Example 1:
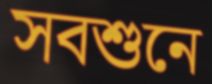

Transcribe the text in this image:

সবশুনে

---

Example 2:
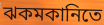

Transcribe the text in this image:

ঝকমকানিতে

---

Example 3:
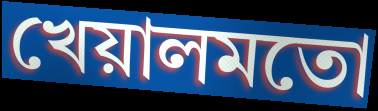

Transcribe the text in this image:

খেয়ালমতো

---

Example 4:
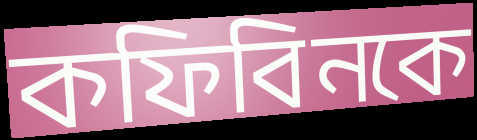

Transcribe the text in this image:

কফিবিনকে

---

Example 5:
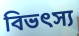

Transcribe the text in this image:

বিভৎস্য